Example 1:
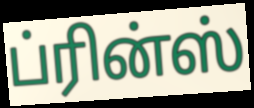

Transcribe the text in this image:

ப்ரின்ஸ்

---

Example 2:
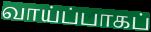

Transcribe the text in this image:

வாய்ப்பாகப்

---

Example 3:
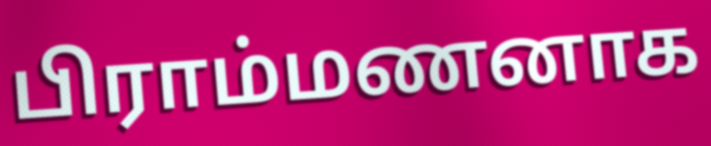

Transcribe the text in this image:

பிராம்மணனாக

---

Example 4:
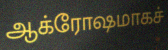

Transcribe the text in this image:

ஆக்ரோஷமாகச்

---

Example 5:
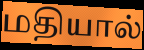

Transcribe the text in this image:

மதியால்